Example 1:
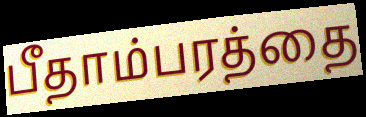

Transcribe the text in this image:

பீதாம்பரத்தை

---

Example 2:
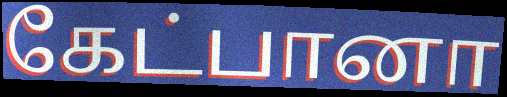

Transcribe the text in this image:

கேட்பானா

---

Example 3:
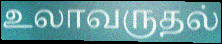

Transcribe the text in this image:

உலாவருதல்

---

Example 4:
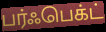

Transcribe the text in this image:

பர்ஃபெக்ட்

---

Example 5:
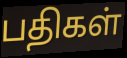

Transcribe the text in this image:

பதிகள்